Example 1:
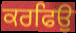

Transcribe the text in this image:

ਕਰਫਿਉ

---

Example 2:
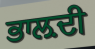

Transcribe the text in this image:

ਭਾਲ਼ਦੀ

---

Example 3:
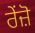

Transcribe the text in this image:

ਰੇਂਜ਼ੋ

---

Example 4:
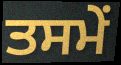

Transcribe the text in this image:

ਤਸਮੇਂ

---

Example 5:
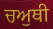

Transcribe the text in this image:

ਚਅੁਥੀ